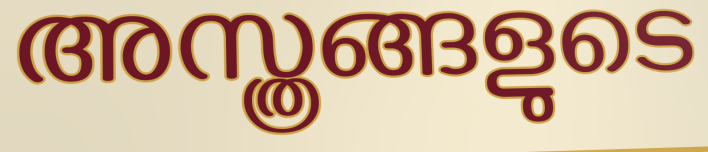
അസ്ത്രങ്ങളുടെ